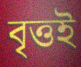
বৃত্তই